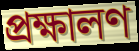
প্রক্ষালণ